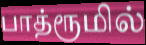
பாத்ரூமில்